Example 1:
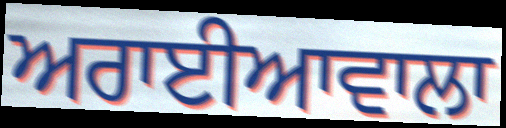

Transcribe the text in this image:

ਅਰਾਈਆਵਾਲਾ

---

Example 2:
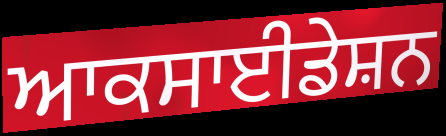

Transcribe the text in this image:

ਆਕਸਾਈਡੇਸ਼ਨ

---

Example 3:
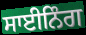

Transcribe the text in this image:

ਸਾਈਨਿੰਗ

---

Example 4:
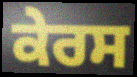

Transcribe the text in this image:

ਕੇਰਸ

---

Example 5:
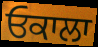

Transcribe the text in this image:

ਓਕਾਲਾ